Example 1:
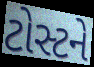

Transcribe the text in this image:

ટોસ્ટને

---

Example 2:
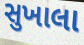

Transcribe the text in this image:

સુખાલા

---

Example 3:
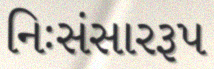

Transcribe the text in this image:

નિઃસંસારરૂપ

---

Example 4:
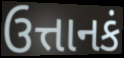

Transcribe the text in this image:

ઉત્તાનકં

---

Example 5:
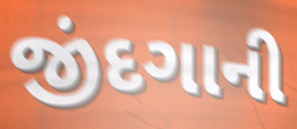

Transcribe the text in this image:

જીંદગાની